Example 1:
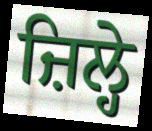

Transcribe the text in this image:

ਜ਼ਿਲ੍ਹੇ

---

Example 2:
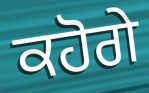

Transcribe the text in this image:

ਕਹੋਗੇ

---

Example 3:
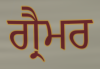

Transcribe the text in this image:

ਗ੍ਰੈਮਰ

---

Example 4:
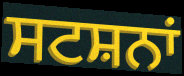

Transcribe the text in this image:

ਸਟਸ਼ਨਾਂ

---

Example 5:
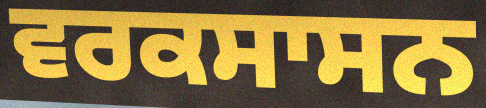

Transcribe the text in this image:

ਵਰਕਸਾਸਨ